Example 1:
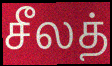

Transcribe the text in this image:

சீலத்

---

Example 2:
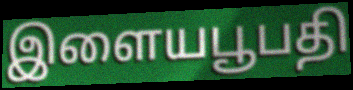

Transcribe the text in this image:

இளையபூபதி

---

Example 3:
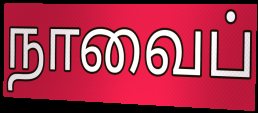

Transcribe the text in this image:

நாவைப்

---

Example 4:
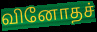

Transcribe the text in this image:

வினோதச்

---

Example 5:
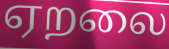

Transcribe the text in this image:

ஏறலை